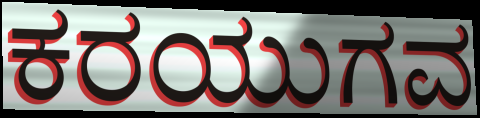
ಕರಯುಗವ